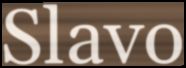
Slavo